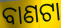
ବାଣଟା